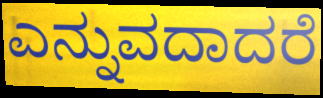
ಎನ್ನುವದಾದರೆ